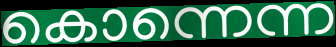
കൊന്നെന്ന